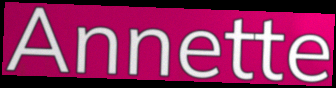
Annette